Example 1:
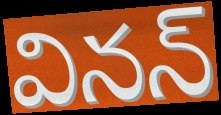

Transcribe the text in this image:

వినన్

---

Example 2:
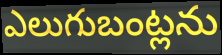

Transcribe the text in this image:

ఎలుగుబంట్లను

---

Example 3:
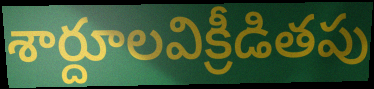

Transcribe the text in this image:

శార్దూలవిక్రీడితపు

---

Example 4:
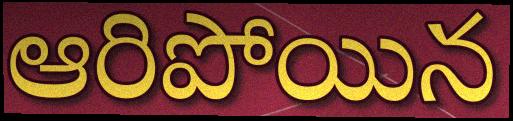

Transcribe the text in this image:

ఆరిపోయిన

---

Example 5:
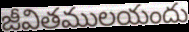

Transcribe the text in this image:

జీవితములయందు